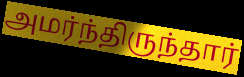
அமர்ந்திருந்தார்